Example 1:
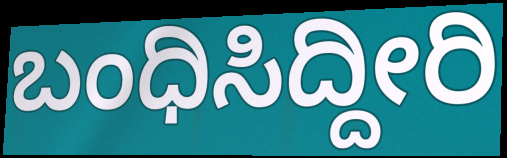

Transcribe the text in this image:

ಬಂಧಿಸಿದ್ದೀರಿ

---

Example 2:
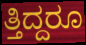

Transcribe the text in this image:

ತ್ತಿದ್ದರೂ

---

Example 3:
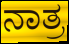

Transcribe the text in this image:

ನಾತ್ರ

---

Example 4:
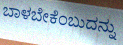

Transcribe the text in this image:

ಬಾಳಬೇಕೆಂಬುದನ್ನು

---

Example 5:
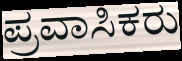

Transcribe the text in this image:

ಪ್ರವಾಸಿಕರು